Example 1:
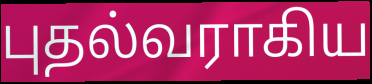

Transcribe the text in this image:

புதல்வராகிய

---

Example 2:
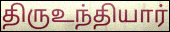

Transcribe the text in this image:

திருஉந்தியார்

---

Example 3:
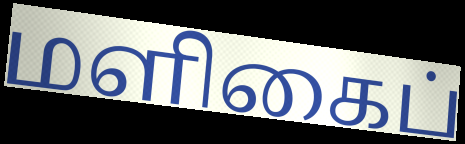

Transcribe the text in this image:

மளிகைப்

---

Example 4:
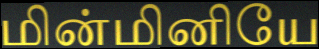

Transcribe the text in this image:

மின்மினியே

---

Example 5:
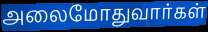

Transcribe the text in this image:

அலைமோதுவார்கள்